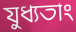
যুধ্যতাং